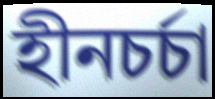
হীনচর্চা